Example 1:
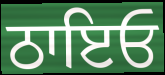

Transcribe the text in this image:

ਠਾਇਓ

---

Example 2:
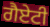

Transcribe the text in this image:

ਗੈਏਟੀ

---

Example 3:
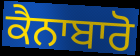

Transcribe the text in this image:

ਕੈਨਾਬਾਰੋ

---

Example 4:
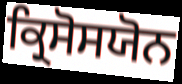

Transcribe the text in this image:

ਕ੍ਰਿਸੋਸਯੋਨ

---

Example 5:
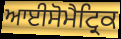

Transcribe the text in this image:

ਆਈਸੋਮੈਟ੍ਰਿਕ